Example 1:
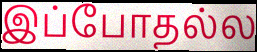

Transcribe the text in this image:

இப்போதல்ல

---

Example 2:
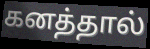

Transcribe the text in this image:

கனத்தால்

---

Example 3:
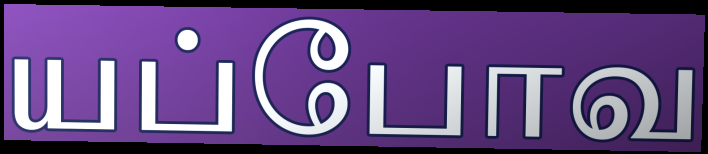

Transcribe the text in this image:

யப்போவ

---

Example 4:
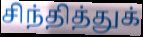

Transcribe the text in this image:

சிந்தித்துக்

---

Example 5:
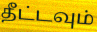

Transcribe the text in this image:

தீட்டவும்